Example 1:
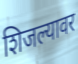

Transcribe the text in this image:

शिजल्यावर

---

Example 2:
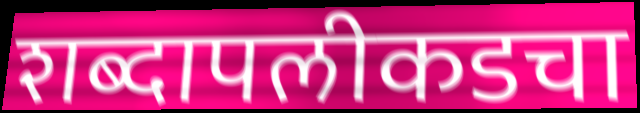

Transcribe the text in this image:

शब्दापलीकडचा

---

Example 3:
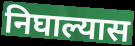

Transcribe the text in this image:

निघाल्यास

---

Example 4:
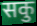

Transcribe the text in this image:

सकु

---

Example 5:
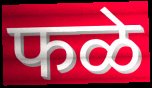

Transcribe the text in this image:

फळे